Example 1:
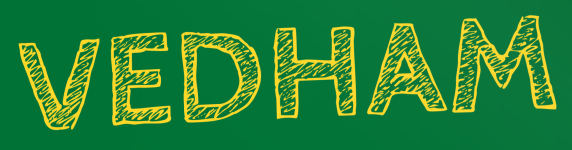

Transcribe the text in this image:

VEDHAM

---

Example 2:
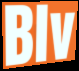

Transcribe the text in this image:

Blv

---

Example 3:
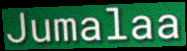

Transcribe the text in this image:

Jumalaa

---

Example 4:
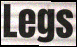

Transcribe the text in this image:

Legs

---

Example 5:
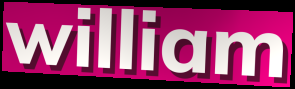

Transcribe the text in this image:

william